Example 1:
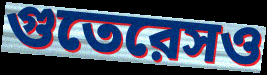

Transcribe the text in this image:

গুতেরেসও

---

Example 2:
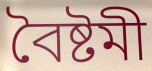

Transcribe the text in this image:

বৈষ্টমী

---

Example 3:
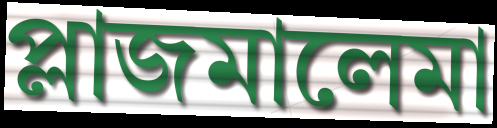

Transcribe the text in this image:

প্লাজমালেমা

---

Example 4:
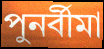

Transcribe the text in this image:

পুনর্বীমা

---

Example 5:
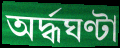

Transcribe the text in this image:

অর্দ্ধঘণ্টা